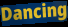
Dancing